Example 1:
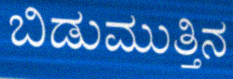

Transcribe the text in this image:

ಬಿಡುಮುತ್ತಿನ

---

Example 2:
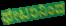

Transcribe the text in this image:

ಥೇಟರಿನಿಂದ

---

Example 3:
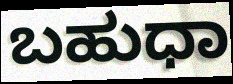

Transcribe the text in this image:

ಬಹುಧಾ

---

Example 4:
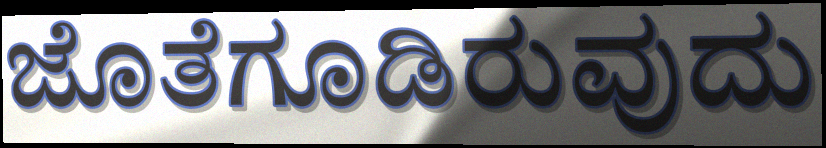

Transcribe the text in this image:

ಜೊತೆಗೂಡಿರುವುದು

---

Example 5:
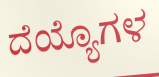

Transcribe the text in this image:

ದೆಯ್ಯೊಗಳ